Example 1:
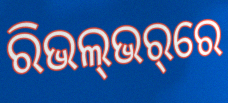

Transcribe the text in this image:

ରିଭଲ୍‌ଭର୍‌ରେ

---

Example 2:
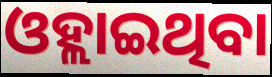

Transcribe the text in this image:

ଓହ୍ଲାଇଥିବା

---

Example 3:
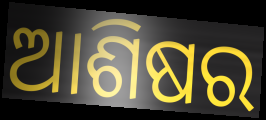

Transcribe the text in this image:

ଆଶିଷର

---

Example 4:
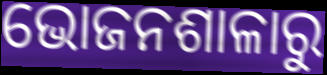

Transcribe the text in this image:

ଭୋଜନଶାଳାରୁ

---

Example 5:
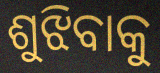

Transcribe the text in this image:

ଶୁଝିବାକୁ